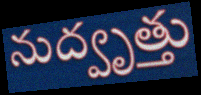
నుద్వృత్తు